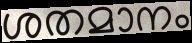
ശതമാനം